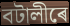
বটালীৰে